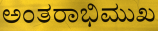
ಅಂತರಾಭಿಮುಖ